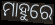
ମାହୁରେ